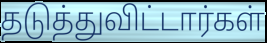
தடுத்துவிட்டார்கள்